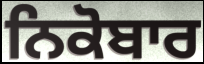
ਨਿਕੋਬਾਰ